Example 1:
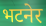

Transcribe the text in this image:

भटनेर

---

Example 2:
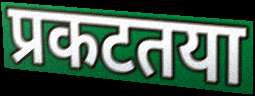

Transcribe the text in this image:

प्रकटतया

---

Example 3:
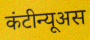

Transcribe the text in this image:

कंटीन्यूअस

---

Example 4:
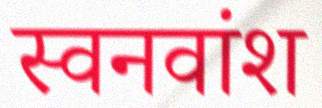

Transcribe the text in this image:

स्वनवांश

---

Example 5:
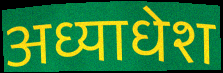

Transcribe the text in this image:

अध्याधेश